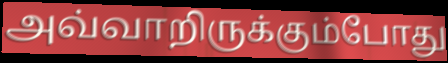
அவ்வாறிருக்கும்போது